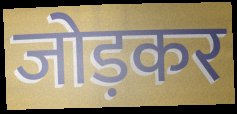
जोड़कर